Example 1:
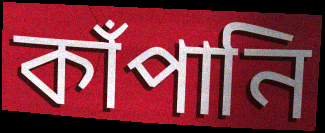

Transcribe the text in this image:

কাঁপানি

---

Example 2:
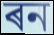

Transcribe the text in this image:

ৰন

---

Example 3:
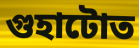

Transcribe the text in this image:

গুহাটোত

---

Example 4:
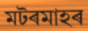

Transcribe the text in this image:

মটৰমাহৰ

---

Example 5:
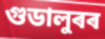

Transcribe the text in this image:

গুডালুৰৰ